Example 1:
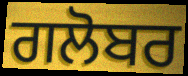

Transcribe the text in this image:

ਗਲੋਬਰ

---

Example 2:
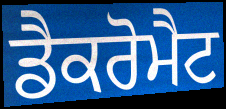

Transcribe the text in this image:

ਡੈਕਰੋਮੈਟ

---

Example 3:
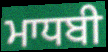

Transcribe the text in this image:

ਮਾਧਬੀ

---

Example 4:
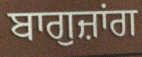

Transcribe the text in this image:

ਬਾਗੁਜ਼ਾਂਗ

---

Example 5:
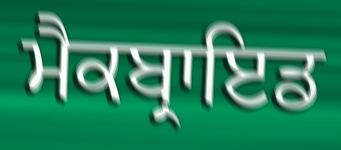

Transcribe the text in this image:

ਮੈਕਬ੍ਰਾਇਡ